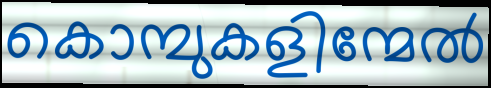
കൊമ്പുകളിന്മേൽ